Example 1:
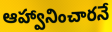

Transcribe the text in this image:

ఆహ్వానించారనే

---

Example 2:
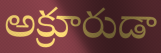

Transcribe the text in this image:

అక్రూరుడా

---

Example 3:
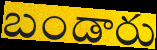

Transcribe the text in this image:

బండారు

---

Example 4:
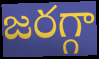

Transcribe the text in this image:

జరగ్గా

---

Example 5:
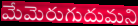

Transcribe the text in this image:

మేమెరుగుదుమని